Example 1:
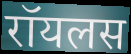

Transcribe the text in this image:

रॉयलस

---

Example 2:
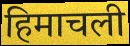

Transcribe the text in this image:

हिमाचली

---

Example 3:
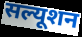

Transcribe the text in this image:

सल्यूशन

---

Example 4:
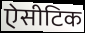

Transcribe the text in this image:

ऐसीटिक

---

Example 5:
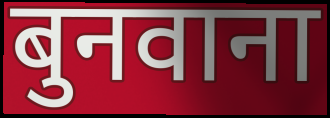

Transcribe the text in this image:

बुनवाना